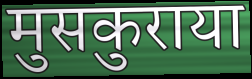
मुसकुराया